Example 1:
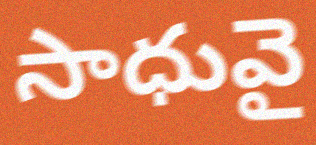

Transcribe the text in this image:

సాధువై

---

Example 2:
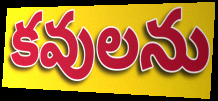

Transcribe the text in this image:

కవులను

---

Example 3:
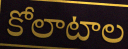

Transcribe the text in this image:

కోలాటాల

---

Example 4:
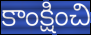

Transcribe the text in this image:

కాంక్షించి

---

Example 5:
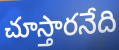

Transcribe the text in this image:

చూస్తారనేది